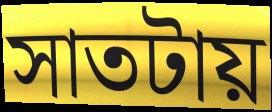
সাতটায়